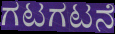
ಗಟಗಟನೆ